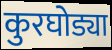
कुरघोड्या